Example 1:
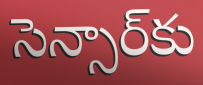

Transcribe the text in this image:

సెన్సార్‌కు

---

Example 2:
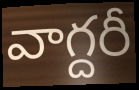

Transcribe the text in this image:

వాగ్దరీ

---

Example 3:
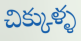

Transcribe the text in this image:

చిక్కుళ్ళ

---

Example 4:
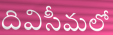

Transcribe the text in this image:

దివిసీమలో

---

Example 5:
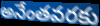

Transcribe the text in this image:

అనేంతవరకు